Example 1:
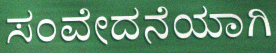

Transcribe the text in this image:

ಸಂವೇದನೆಯಾಗಿ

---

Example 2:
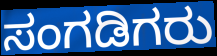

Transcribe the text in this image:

ಸಂಗಡಿಗರು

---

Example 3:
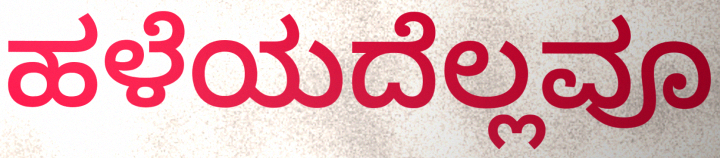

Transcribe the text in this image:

ಹಳೆಯದೆಲ್ಲವೂ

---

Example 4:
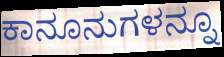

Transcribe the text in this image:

ಕಾನೂನುಗಳನ್ನೂ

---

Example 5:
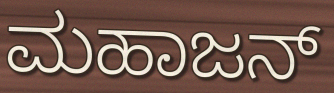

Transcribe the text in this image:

ಮಹಾಜನ್